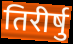
तिरीर्षु